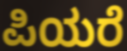
ಪಿಯರೆ